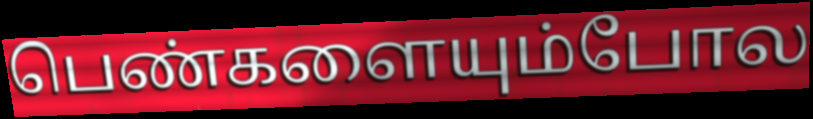
பெண்களையும்போல